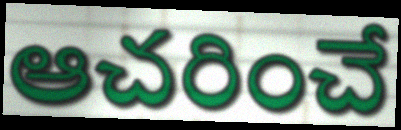
ఆచరించే